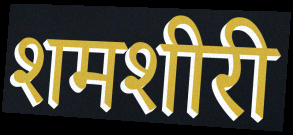
शमशीरी